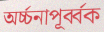
অর্চ্চনাপূর্ব্বক